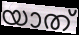
യാത്